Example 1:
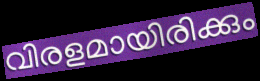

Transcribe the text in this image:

വിരളമായിരിക്കും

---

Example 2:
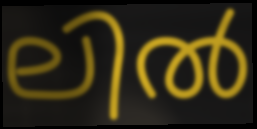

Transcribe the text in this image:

ലിൽ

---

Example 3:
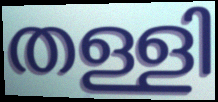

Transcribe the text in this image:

തള്ളി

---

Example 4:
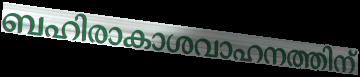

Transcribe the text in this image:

ബഹിരാകാശവാഹനത്തിന്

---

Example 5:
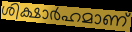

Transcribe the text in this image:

ശിക്ഷാർഹമാണ്